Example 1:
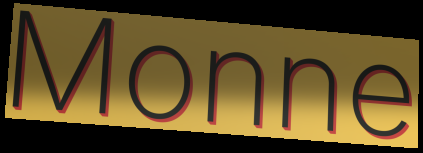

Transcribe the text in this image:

Monne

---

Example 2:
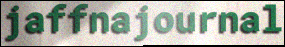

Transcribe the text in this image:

jaffnajournal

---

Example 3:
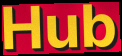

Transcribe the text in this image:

Hub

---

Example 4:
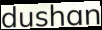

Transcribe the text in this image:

dushan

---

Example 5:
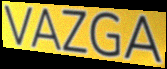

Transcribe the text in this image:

VAZGA